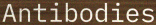
Antibodies